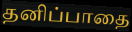
தனிப்பாதை